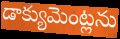
డాక్యుమెంట్లను